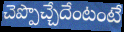
చెప్పొచ్చేదేంటంటే